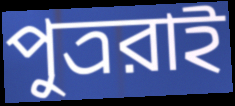
পুত্ররাই